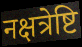
नक्षत्रेष्टि